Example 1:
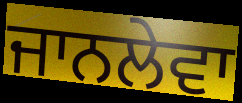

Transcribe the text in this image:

ਜਾਨਲੇਵਾ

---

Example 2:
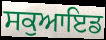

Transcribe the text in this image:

ਸਕੁਆਇਡ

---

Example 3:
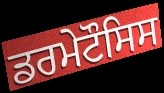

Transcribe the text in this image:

ਡਰਮੇਟੌਸਿਸ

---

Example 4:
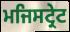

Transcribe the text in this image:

ਮਜਿਸਟ੍ਰੇਟ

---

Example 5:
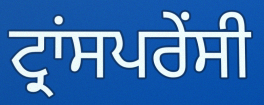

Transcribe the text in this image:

ਟ੍ਰਾਂਸਪਰੇਂਸੀ